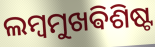
ଲମ୍ବମୁଖଵିଶିଷ୍ଟ